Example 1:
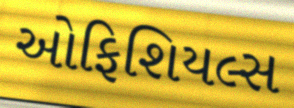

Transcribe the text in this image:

ઓફિશિયલ્સ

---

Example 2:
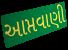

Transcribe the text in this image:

આપ્તવાણી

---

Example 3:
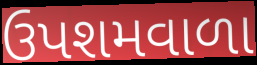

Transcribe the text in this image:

ઉપશમવાળા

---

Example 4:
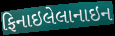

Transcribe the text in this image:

ફિનાઇલેલાનાઇન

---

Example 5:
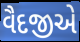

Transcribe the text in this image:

વૈદજીએ